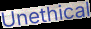
Unethical